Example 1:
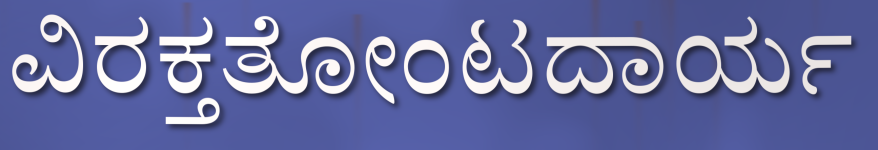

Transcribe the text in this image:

ವಿರಕ್ತತೋಂಟದಾರ್ಯ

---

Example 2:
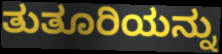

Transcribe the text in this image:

ತುತೂರಿಯನ್ನು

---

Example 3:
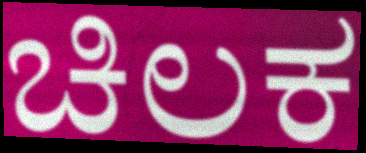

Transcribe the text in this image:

ಚಿಲಕ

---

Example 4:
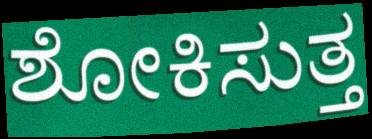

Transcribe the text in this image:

ಶೋಕಿಸುತ್ತ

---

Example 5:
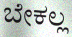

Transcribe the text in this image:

ಬೇಕಲ್ಲ